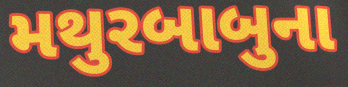
મથુરબાબુના